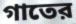
গাতের